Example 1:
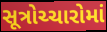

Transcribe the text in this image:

સૂત્રોચ્ચારોમાં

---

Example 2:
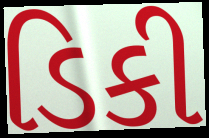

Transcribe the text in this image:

ડિકી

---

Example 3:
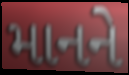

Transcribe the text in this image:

માનને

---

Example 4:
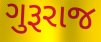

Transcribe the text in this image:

ગુરૂરાજ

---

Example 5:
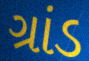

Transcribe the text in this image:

ગ્રાંડ